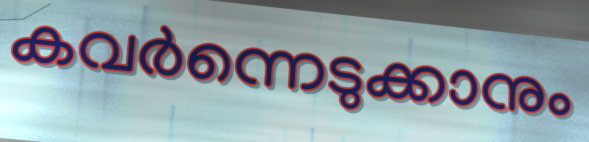
കവർന്നെടുക്കാനും